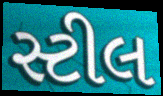
સ્ટીલ